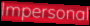
Impersonal